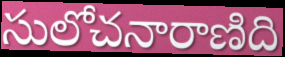
సులోచనారాణిది